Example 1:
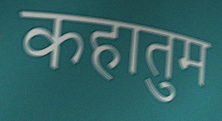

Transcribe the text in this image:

कहातुम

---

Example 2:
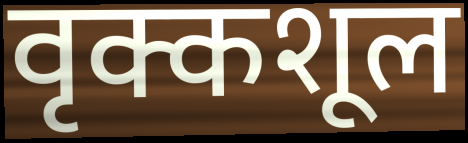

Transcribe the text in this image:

वृक्कशूल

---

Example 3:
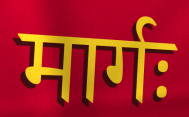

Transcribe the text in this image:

मार्गः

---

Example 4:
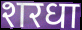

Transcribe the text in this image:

शरधा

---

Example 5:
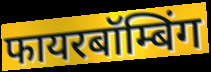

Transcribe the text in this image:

फायरबॉम्बिंग